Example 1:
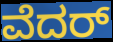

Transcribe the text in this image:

ವೆದರ್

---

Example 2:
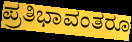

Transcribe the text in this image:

ಪ್ರತಿಭಾವಂತರೂ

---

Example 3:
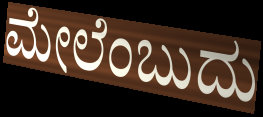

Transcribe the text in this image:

ಮೇಲೆಂಬುದು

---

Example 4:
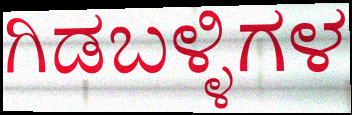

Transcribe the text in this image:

ಗಿಡಬಳ್ಳಿಗಳ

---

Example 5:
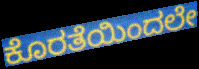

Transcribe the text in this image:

ಕೊರತೆಯಿಂದಲೇ